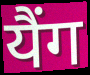
यैंग